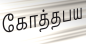
கோத்தபய